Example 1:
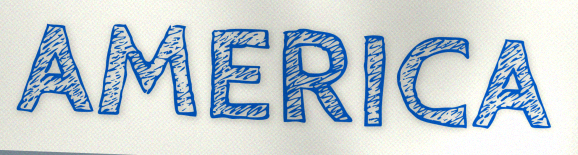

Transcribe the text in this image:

AMERICA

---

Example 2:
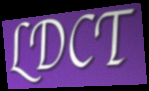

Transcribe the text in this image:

LDCT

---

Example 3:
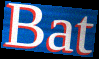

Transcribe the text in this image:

Bat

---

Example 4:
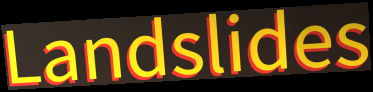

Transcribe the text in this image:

Landslides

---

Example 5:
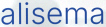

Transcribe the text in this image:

alisema